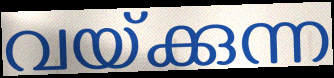
വയ്‌ക്കുന്ന